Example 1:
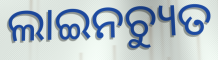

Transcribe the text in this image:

ଲାଇନଚ୍ୟୁତ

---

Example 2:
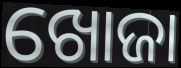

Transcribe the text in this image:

ଖୋଜା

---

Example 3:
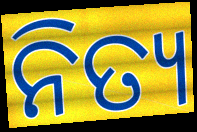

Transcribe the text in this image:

ନିତ୍ୟ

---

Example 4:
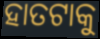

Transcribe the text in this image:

ହାତଟାକୁ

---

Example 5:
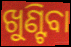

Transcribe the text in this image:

ଖୁଣ୍ଟିବା